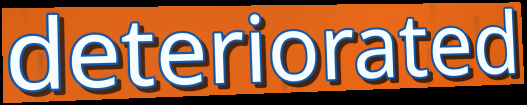
deteriorated